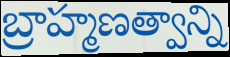
బ్రాహ్మణత్వాన్ని